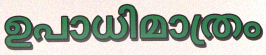
ഉപാധിമാത്രം